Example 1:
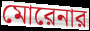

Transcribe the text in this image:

মোরেনার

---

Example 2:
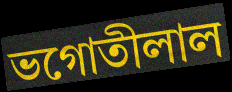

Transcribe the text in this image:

ভগোতীলাল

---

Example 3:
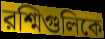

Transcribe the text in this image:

রশ্মিগুলিকে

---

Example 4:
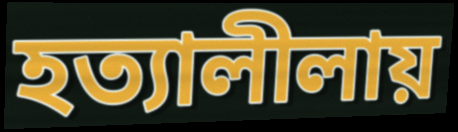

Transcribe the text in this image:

হত্যালীলায়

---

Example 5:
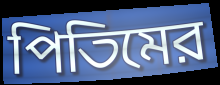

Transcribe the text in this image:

পিতিমের